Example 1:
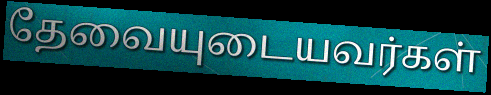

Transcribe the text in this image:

தேவையுடையவர்கள்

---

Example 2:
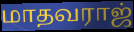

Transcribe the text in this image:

மாதவராஜ்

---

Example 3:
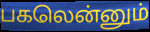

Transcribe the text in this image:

பகலென்னும்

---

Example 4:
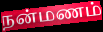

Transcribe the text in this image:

நன்மணம்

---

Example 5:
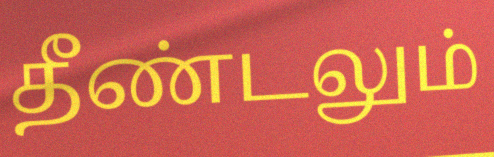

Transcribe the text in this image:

தீண்டலும்